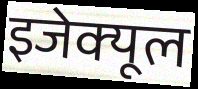
इजेक्यूल